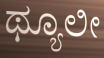
ಥ್ಯೂಲೀ